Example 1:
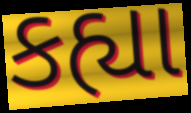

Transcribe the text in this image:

કહ્યા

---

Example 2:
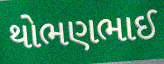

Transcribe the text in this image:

થોભણભાઈ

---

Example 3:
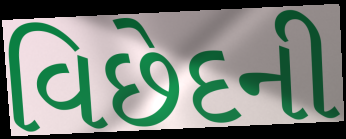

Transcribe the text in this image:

વિછેદની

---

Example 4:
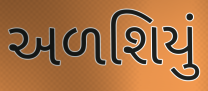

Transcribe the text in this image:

અળશિયું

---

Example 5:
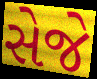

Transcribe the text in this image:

સેજે